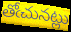
తోఁచునట్లు